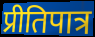
प्रीतिपात्र